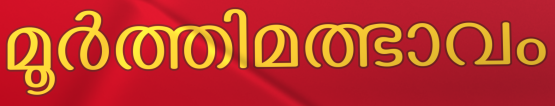
മൂർത്തിമത്ഭാവം